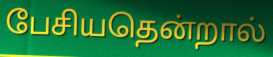
பேசியதென்றால்